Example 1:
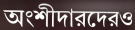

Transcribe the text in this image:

অংশীদারদেরও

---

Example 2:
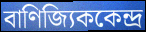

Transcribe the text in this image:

বাণিজ্যিককেন্দ্র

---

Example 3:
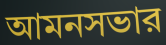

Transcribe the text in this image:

আমনসভার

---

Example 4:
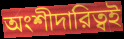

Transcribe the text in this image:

অংশীদারিত্বই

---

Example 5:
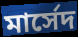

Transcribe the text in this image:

মার্সেদ